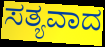
ಸತ್ಯವಾದ